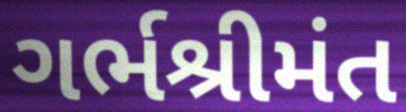
ગર્ભશ્રીમંત